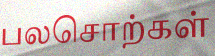
பலசொற்கள்